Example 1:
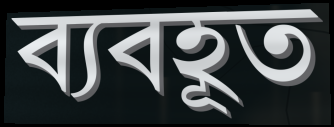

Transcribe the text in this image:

ব্যবহূত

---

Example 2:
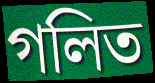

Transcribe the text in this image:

গলিত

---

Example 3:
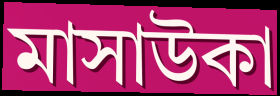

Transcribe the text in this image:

মাসাউকা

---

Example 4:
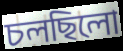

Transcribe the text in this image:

চলছিলো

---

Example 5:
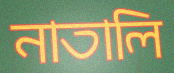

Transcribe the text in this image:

নাতালি